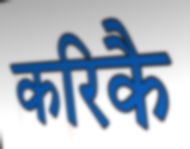
करिकै